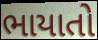
ભાયાતો